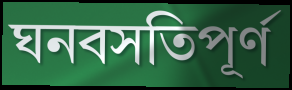
ঘনবসতিপূর্ণ